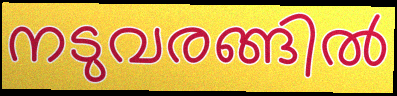
നടുവരങ്ങിൽ